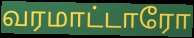
வரமாட்டாரோ